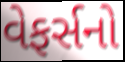
વેફર્સનો